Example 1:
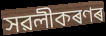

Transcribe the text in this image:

সৱলীকৰণৰ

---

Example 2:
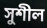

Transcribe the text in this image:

সুশীল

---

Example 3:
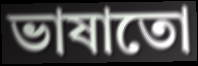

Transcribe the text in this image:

ভাষাতো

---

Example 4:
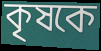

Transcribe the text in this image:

কৃষকে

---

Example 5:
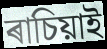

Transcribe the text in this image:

ৰাচিয়াই